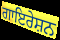
ਗਾਇਰੇਸ਼ਨ